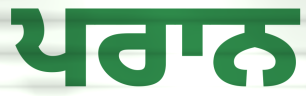
ਪਰਾਨ